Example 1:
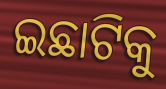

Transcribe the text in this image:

ଇଛାଟିକୁ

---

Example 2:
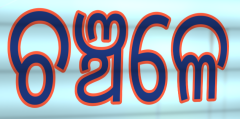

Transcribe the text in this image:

ଚଞ୍ଚଳେ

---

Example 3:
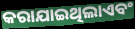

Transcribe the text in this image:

କରାଯାଇଥିଲାଏବଂ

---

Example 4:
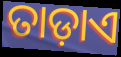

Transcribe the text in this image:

ତାଡ଼ାଏ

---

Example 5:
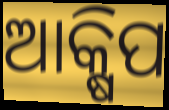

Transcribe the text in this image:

ଆକ୍ଷିପ